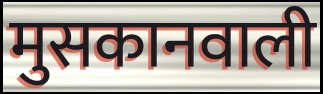
मुसकानवाली